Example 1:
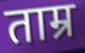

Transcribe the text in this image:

ताम्र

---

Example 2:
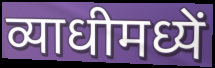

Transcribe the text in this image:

व्याधीमध्यें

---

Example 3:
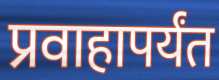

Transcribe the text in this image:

प्रवाहापर्यंत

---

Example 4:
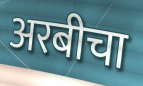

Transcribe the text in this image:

अरबीचा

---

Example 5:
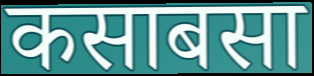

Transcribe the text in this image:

कसाबसा